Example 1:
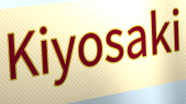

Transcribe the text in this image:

Kiyosaki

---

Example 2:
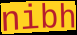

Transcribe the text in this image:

nibh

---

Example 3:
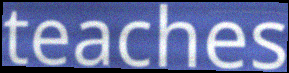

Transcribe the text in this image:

teaches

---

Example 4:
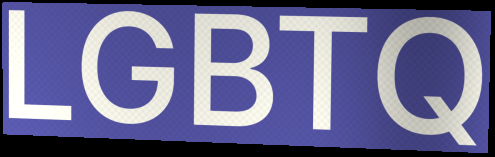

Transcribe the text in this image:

LGBTQ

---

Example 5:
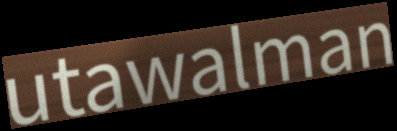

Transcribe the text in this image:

utawalman